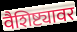
वैशिष्ट्यावर